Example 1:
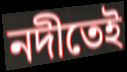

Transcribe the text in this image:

নদীতেই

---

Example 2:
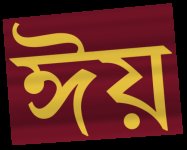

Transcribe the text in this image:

ঈয়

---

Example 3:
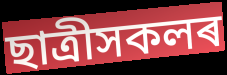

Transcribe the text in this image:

ছাত্ৰীসকলৰ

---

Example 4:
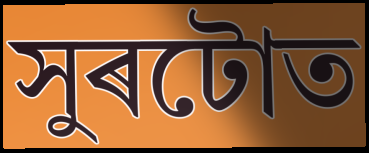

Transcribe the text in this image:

সুৰটোত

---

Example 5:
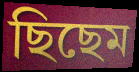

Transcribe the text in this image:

ছিছেম